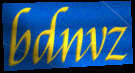
bdnvz